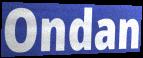
Ondan